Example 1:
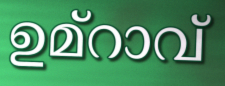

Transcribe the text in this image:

ഉമ്റാവ്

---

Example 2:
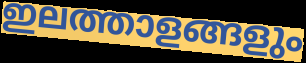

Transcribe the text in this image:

ഇലത്താളങ്ങളും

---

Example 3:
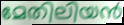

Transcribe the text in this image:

മേതിലിയൻ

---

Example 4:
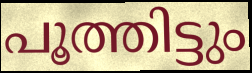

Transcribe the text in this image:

പൂത്തിട്ടും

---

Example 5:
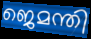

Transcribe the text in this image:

ജെമന്തി